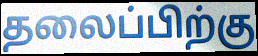
தலைப்பிற்கு